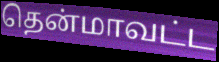
தென்மாவட்ட